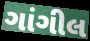
ગાંગીલ